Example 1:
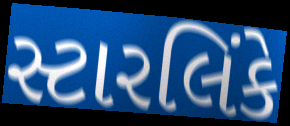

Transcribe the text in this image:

સ્ટારલિંકે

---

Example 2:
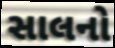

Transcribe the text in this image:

સાલનો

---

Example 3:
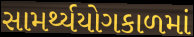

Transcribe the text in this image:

સામર્થ્યયોગકાળમાં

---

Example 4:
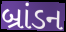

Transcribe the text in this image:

બ્રાંડન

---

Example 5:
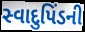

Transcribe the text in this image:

સ્વાદુપિંડની